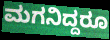
ಮಗನಿದ್ದರೂ